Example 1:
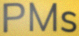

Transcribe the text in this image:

PMs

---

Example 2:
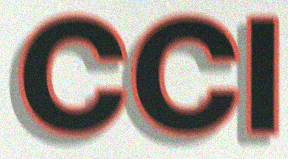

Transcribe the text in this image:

CCI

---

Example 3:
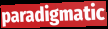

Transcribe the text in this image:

paradigmatic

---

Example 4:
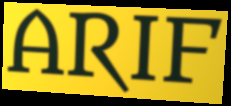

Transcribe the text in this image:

ARIF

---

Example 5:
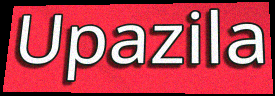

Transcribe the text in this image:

Upazila